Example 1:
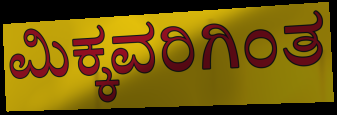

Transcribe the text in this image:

ಮಿಕ್ಕವರಿಗಿಂತ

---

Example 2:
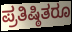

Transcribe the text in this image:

ಪ್ರತಿಷ್ಠಿತರೂ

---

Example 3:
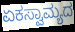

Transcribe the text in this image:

ಏಕಸ್ವಾಮ್ಯದ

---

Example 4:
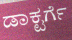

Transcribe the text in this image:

ಡಾಕ್ಟರ್ಗೆ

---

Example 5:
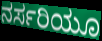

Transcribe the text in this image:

ನರ್ಸರಿಯೂ